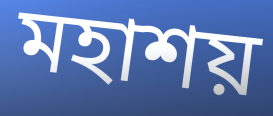
মহাশয়